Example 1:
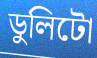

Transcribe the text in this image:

ডুলিটো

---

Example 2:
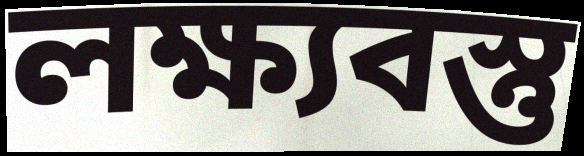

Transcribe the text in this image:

লক্ষ্যবস্তু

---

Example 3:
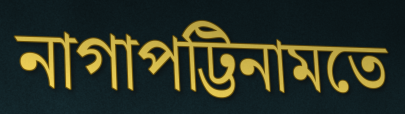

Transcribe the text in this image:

নাগাপট্টিনামতে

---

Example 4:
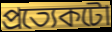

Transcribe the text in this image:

প্ৰত্যেকটো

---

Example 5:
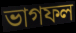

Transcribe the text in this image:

ভাগফল